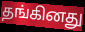
தங்கினது